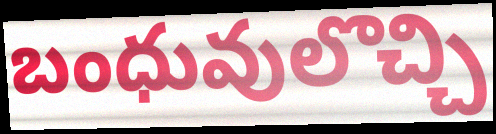
బంధువులొచ్చి